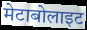
मेटाबोलाइट